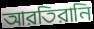
আরতিরানি